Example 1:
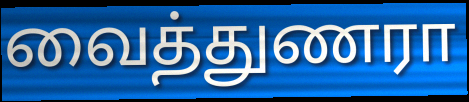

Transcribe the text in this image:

வைத்துணரா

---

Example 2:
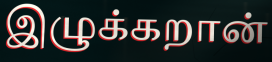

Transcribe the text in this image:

இழுக்கறான்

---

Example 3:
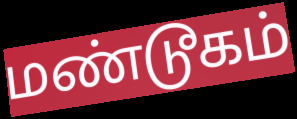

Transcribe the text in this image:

மண்டூகம்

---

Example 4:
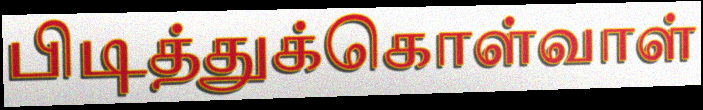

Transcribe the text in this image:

பிடித்துக்கொள்வாள்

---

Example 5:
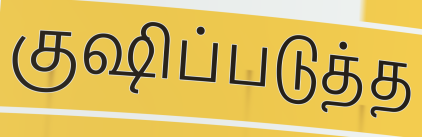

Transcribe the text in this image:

குஷிப்படுத்த